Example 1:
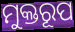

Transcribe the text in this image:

ମୁକ୍ତରୂପ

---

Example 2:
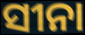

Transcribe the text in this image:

ସୀନା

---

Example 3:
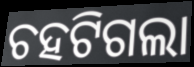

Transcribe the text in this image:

ଚହଟିଗଲା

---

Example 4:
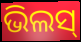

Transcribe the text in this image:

ଭିଲସ୍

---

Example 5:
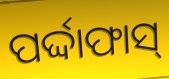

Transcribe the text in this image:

ପର୍ଦ୍ଦାଫାସ୍